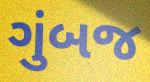
ગુંબજ